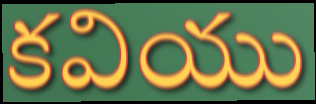
కవియు